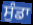
ਸੁੰਡਾ